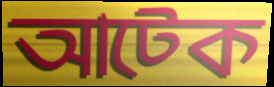
আট্কে